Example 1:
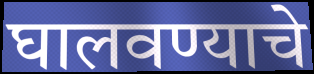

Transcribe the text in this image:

घालवण्याचे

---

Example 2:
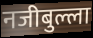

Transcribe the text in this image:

नजीबुल्ला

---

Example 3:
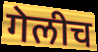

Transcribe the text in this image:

गेलीच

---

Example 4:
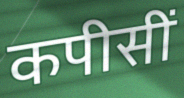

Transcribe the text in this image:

कपीसीं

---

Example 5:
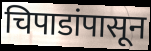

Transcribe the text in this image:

चिपाडांपासून